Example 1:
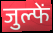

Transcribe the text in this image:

जुल्फें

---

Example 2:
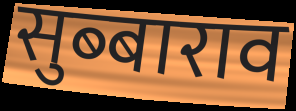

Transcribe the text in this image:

सुब्‍बाराव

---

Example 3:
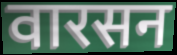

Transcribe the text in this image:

वारसन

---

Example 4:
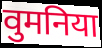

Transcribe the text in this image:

वुमनिया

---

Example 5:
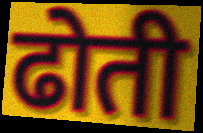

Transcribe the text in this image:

ढोती